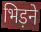
भिड़ने